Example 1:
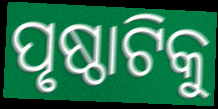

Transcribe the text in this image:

ପୃଷ୍ଠାଟିକୁ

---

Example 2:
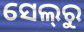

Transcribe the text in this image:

ସେଲ୍‌ରୁ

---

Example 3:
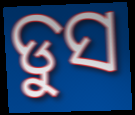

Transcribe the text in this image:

ଡୁସ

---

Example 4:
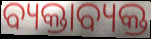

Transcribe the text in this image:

ବ୍ୟକ୍ତାବ୍ୟକ୍ତ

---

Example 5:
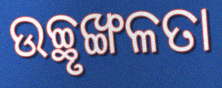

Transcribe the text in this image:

ଉଚ୍ଛୃଙ୍ଖଳତା